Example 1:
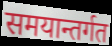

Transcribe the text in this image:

समयान्तर्गत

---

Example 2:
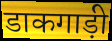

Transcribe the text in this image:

डाकगाड़ी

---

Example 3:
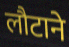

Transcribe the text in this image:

लौटाने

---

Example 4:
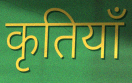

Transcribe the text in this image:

कृतियाँ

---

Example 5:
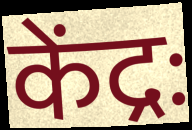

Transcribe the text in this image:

केंद्रः